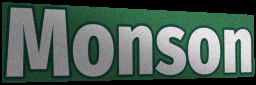
Monson